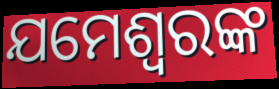
ଯମେଶ୍ୱରଙ୍କ